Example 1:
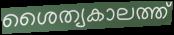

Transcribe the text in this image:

ശൈത്യകാലത്ത്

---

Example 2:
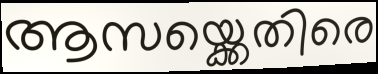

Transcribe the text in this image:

ആസയ്ക്കെതിരെ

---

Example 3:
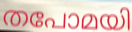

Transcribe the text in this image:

തപോമയി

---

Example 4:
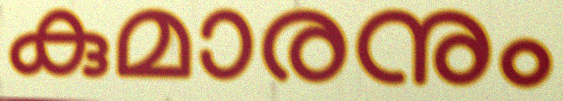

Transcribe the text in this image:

കുമാരനും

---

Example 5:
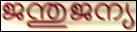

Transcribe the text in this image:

ജന്തുജന്യ